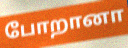
போறானா